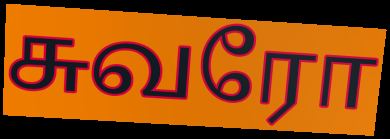
சுவரோ